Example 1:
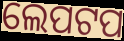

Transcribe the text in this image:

ଲେପଟପ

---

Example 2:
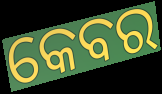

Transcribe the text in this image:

କେବର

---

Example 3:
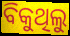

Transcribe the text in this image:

ବିକୁଥିଲୁ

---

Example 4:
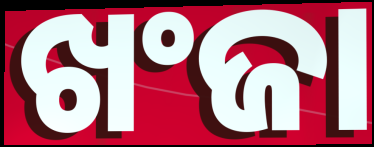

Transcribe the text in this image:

ଖଂଜା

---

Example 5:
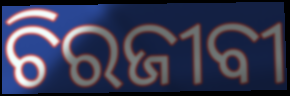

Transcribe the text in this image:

ଚିରଜୀବୀ